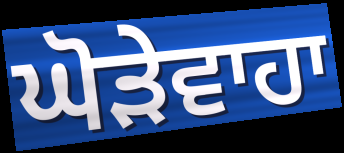
ਘੋੜੇਵਾਹਾ